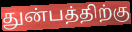
துன்பத்திற்கு